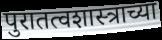
पुरातत्वशास्त्राच्या